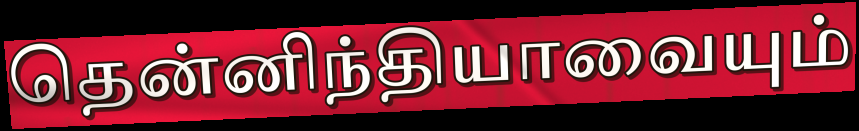
தென்னிந்தியாவையும்